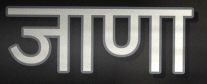
जाणा